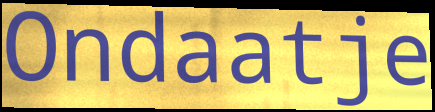
Ondaatje